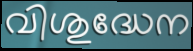
വിശുദ്ധേന